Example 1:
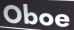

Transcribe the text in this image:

Oboe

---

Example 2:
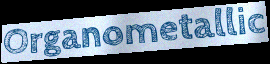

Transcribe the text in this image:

Organometallic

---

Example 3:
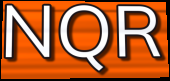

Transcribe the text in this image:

NQR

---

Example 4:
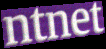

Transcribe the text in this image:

ntnet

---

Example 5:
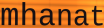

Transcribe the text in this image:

mhanat